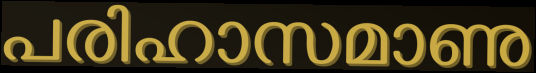
പരിഹാസമാണു